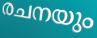
രചനയും